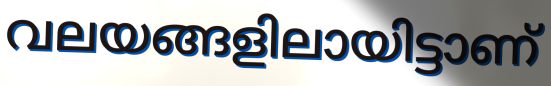
വലയങ്ങളിലായിട്ടാണ്